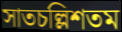
সাতচল্লিশতম